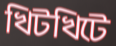
খিটখিটে